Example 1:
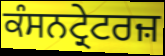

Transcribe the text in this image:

ਕੰਸਨਟ੍ਰੇਟਰਜ਼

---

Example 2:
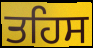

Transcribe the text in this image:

ਤਹਿਸ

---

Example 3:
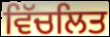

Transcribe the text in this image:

ਵਿੱਚਲਿਤ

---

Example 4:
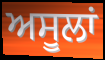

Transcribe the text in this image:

ਅਸੂਲਾਂ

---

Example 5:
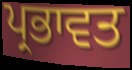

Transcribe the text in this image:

ਪ੍ਰਭਾਵਤ